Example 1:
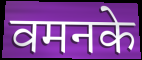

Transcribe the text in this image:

वमनके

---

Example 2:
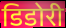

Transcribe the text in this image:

डिडोरी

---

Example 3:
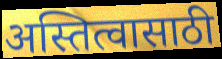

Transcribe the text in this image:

अस्तित्वासाठी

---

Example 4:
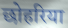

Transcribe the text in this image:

छोहरिया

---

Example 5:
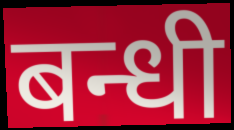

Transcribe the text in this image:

बन्धी